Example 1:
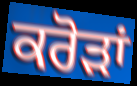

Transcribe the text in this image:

ਕਰੋਡ਼ਾਂ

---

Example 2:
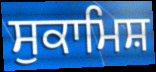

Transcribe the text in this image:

ਸੁਕਾਮਿਸ਼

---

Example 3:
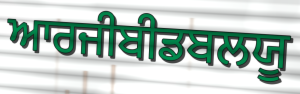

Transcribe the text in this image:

ਆਰਜੀਬੀਡਬਲਯੂ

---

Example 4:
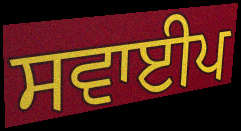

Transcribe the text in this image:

ਸਵਾਈਪ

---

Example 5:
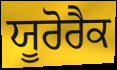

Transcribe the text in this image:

ਯੂਰੋਰੈਕ